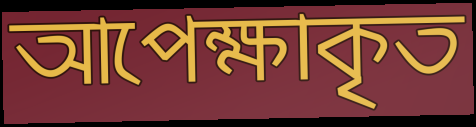
আপেক্ষাকৃত